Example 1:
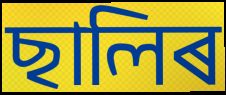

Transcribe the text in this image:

ছালিৰ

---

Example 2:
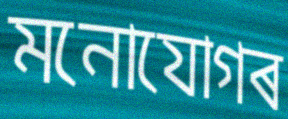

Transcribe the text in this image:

মনোযোগৰ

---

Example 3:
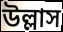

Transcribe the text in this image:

উল্লাস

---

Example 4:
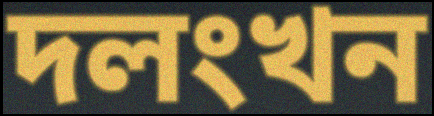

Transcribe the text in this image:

দলংখন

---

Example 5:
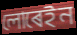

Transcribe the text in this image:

লোৰেইন